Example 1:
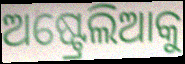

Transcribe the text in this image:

ଅଷ୍ଟ୍ରେଲିଆକୁ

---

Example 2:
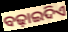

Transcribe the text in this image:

ବଢ଼ାଇଦିଏ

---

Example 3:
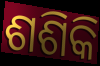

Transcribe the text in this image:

ଶଶିକି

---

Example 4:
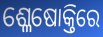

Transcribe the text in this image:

ଶ୍ଳେଷୋକ୍ତିରେ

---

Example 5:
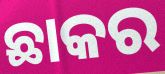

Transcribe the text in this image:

ଛାକର